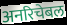
अनरिचेबल